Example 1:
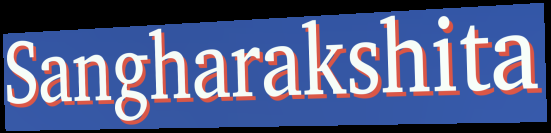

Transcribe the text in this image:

Sangharakshita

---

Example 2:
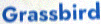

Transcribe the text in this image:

Grassbird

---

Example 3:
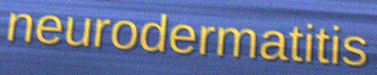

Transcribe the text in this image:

neurodermatitis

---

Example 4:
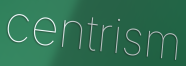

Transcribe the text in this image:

centrism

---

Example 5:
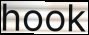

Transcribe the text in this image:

hook